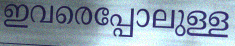
ഇവരെപ്പോലുള്ള